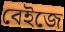
বেইজে